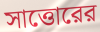
সাত্তোরের